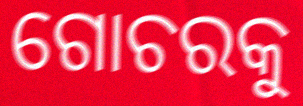
ଗୋଚରକୁ